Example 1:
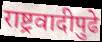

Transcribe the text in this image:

राष्ट्रवादीपुढे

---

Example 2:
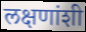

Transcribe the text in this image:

लक्षणांशी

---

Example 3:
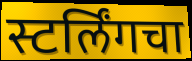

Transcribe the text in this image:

स्टर्लिंगचा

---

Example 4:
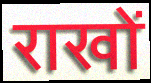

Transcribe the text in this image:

राखों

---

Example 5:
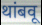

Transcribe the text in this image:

थांबवू